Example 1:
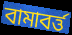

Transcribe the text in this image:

বামাবর্ত্ত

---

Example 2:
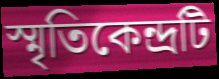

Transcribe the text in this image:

স্মৃতিকেন্দ্রটি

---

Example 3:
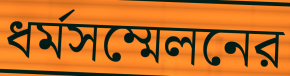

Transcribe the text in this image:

ধর্মসম্মেলনের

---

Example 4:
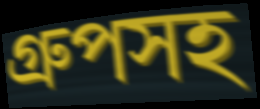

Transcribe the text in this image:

গ্রুপসহ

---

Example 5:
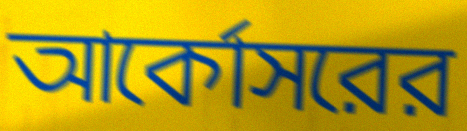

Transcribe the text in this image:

আর্কোসরের